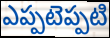
ఎప్పటెప్పటి